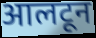
आलटून